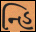
ન્હિ